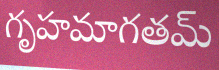
గృహమాగతమ్